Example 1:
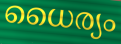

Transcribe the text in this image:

ധൈര്യം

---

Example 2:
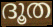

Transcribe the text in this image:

ദൂത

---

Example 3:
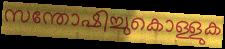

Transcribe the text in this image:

സന്തോഷിച്ചുകൊള്ളുക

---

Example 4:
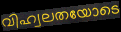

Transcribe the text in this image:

വിഹ്വലതയോടെ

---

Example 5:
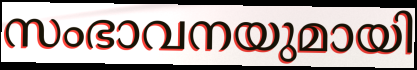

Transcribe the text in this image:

സംഭാവനയുമായി